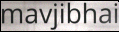
mavjibhai